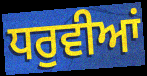
ਧਰੁਵੀਆਂ